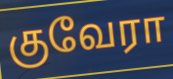
குவேரா